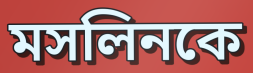
মসলিনকে